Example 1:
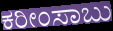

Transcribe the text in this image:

ಕರೀಂಸಾಬು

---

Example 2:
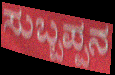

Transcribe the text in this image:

ಸುಬ್ಬಪ್ಪನ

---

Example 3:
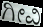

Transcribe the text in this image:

ಗೀವಿ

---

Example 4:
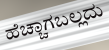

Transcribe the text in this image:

ಹೆಚ್ಚಾಗಬಲ್ಲದು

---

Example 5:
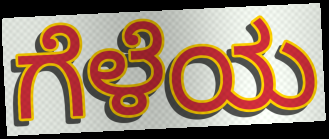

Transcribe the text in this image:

ಗೆಳೆಯ